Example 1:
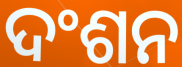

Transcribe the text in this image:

ଦଂଶନ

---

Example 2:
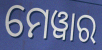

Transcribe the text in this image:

ମେୱାର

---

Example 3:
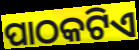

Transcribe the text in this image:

ପାଠକଟିଏ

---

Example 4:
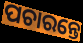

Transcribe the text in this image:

ପଚାରନ୍ତେ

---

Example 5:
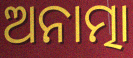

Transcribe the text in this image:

ଅନାତ୍ମା